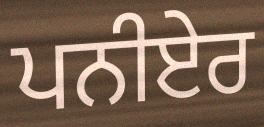
ਪਨੀਏਰ